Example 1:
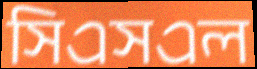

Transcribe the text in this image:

সিএসএল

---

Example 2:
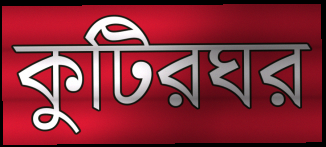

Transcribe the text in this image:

কুটিরঘর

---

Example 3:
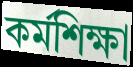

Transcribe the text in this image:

কর্মশিক্ষা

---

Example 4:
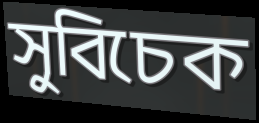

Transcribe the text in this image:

সুবিচেক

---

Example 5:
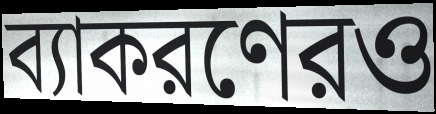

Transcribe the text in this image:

ব্যাকরণেরও